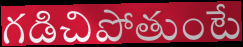
గడిచిపోతుంటే